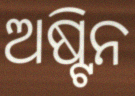
ଅଷ୍ଟିନ